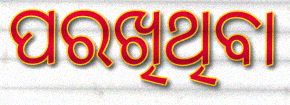
ପରଖିଥିବା